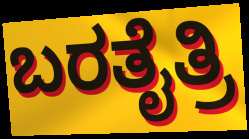
ಬರತೈತ್ರಿ